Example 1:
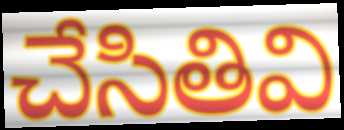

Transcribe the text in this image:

చేసితివి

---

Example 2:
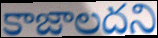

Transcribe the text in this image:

కాజాలదని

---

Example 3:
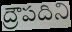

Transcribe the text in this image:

ద్రౌపదిని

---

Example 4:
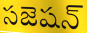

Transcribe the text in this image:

సజెషన్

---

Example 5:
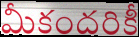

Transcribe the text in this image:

మీకందరికీ